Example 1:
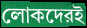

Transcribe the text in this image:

লোকদেরই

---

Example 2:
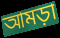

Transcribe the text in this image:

আমড়া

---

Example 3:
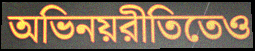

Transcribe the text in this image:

অভিনয়রীতিতেও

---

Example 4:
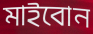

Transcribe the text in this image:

মাইবোন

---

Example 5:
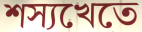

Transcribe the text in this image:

শস্যখেতে